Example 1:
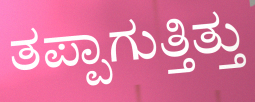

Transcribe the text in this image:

ತಪ್ಪಾಗುತ್ತಿತ್ತು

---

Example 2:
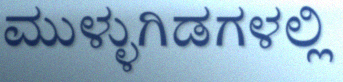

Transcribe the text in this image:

ಮುಳ್ಳುಗಿಡಗಳಲ್ಲಿ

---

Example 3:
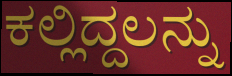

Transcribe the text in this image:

ಕಲ್ಲಿದ್ದಲನ್ನು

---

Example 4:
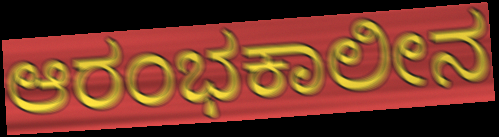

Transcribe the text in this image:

ಆರಂಭಕಾಲೀನ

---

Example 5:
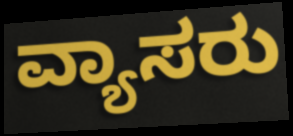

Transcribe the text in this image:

ವ್ಯಾಸರು